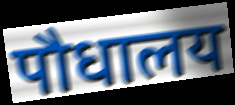
पौधालय